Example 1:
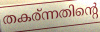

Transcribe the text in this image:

തകര്ന്നതിന്റെ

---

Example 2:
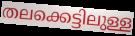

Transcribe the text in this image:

തലക്കെട്ടിലുള്ള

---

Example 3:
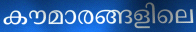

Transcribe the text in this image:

കൗമാരങ്ങളിലെ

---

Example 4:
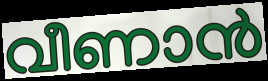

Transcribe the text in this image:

വീണാൻ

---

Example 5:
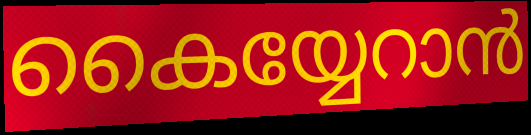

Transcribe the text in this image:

കൈയ്യേറാൻ